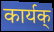
कार्यक्